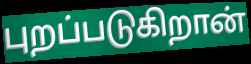
புறப்படுகிறான்